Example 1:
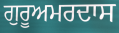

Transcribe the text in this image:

ਗੁਰੂਅਮਰਦਾਸ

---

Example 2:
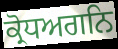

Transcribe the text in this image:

ਕ੍ਰੋਧਅਗਨਿ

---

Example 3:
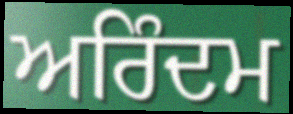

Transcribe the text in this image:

ਅਰਿੰਦਮ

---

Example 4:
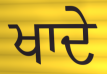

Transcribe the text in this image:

ਖਾਦੇ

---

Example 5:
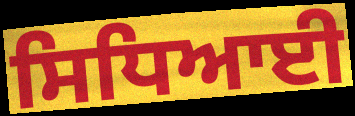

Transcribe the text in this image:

ਸਿਧਿਆਈ